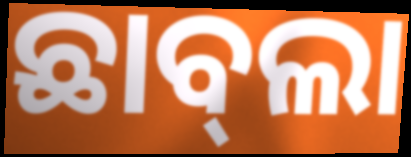
ଛାବ୍‍ଲା